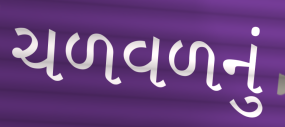
ચળવળનું